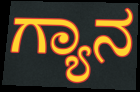
ಗ್ಯಾನ